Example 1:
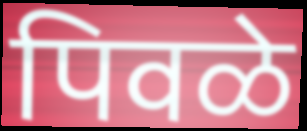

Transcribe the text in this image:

पिवळे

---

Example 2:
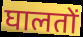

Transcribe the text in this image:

घालतों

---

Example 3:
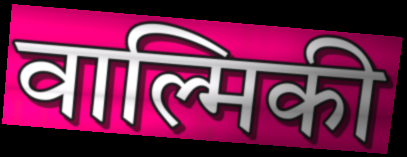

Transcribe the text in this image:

वाल्मिकी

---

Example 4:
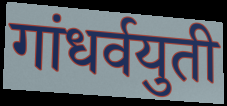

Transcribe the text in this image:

गांधर्वयुती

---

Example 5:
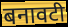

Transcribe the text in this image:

बनावटी